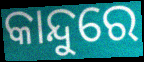
କାନ୍ଦୁରେ